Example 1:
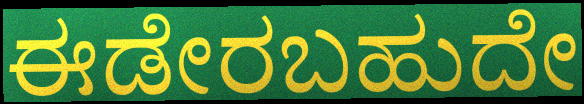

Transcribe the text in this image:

ಈಡೇರಬಹುದೇ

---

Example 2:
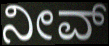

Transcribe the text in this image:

ನೀವ್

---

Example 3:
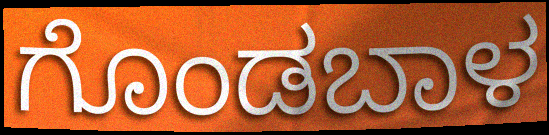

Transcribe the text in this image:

ಗೊಂಡಬಾಳ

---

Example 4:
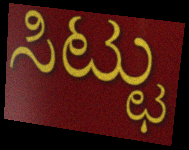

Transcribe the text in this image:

ಸಿಟ್ಟು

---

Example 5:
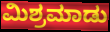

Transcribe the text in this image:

ಮಿಶ್ರಮಾಡು